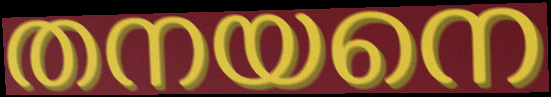
തനയനെ